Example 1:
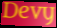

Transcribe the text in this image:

Devy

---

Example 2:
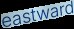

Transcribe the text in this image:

eastward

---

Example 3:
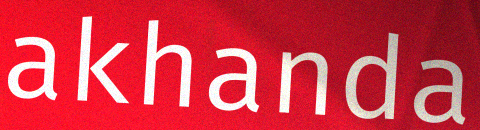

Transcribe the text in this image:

akhanda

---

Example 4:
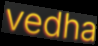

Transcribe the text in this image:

vedha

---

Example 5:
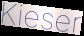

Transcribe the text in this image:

Kieser